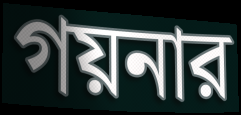
গয়নার